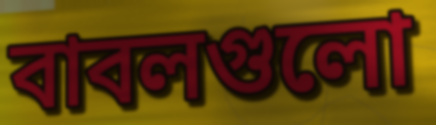
বাবলগুলো